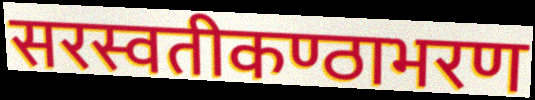
सरस्वतीकण्ठाभरण